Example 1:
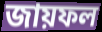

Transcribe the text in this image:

জায়ফল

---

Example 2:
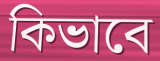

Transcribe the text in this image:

কিভাবে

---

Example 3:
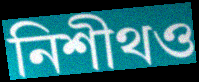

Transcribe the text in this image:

নিশীথও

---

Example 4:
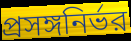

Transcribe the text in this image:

প্রসঙ্গনির্ভর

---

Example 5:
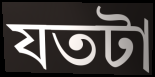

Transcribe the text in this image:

যতটা